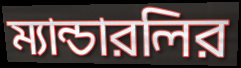
ম্যান্ডারলির